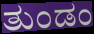
ತುಂಡಂ